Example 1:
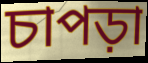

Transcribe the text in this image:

চাপড়া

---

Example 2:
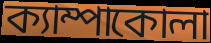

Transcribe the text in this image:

ক্যাম্পাকোলা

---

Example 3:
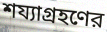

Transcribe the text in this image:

শয্যাগ্রহণের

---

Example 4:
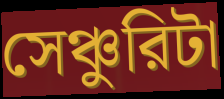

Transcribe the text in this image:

সেঞ্চুরিটা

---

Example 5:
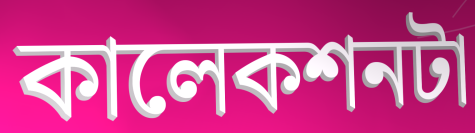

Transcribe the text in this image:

কালেকশনটা